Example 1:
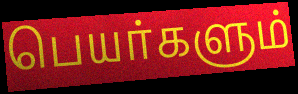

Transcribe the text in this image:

பெயர்களும்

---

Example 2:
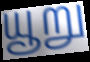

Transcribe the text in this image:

யூறு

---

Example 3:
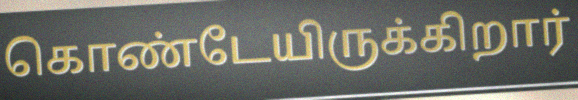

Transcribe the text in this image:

கொண்டேயிருக்கிறார்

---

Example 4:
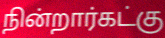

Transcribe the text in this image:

நின்றார்கட்கு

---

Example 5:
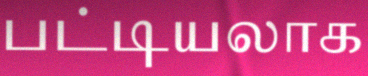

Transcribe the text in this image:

பட்டியலாக